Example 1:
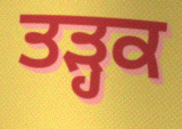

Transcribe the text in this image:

ਤੜ੍ਹਕ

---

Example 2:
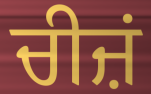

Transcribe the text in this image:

ਚੀਜ਼ਂ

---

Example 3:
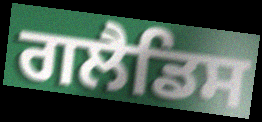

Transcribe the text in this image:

ਗਲੈਡਿਸ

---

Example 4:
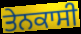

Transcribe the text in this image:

ਤੇਨਕਾਸੀ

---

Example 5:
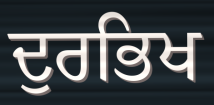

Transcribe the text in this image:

ਦੁਰਭਿਖ